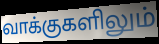
வாக்குகளிலும்